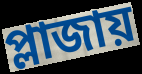
প্লাজায়